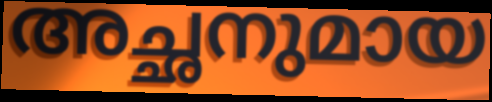
അച്ഛനുമായ